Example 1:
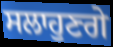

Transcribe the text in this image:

ਸਲਾਹੁਣਗੇ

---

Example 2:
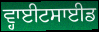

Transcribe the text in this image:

ਵ੍ਹਾਈਟਸਾਈਡ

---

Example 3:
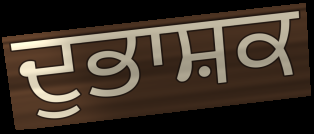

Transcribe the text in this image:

ਦੁਭਾਸ਼ਕ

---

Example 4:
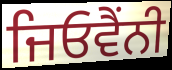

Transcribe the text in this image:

ਜਿਓਵੈਂਨੀ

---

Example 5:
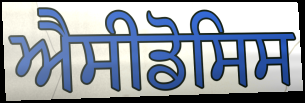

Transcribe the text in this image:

ਐਸੀਡੋਸਿਸ